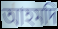
আহমদি